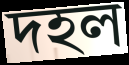
দহল